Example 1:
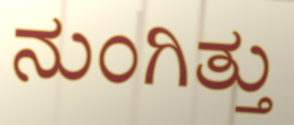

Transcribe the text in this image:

ನುಂಗಿತ್ತು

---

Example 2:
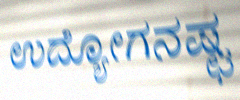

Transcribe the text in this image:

ಉದ್ಯೋಗನಷ್ಟ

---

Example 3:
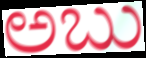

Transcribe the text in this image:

ಅಬು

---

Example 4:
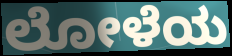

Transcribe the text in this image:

ಲೋಳೆಯ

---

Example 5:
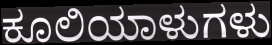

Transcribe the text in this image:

ಕೂಲಿಯಾಳುಗಳು